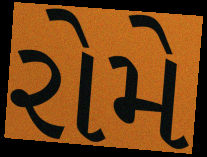
રોમે